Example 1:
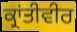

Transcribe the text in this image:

ਕ੍ਰਾਂਤੀਵੀਰ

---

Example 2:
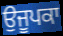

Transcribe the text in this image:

ਉਜੂਪਕਾ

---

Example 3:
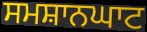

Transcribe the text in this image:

ਸਮਸ਼ਾਨਘਾਟ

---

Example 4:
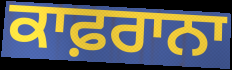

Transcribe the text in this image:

ਕਾਫ਼ਰਾਨਾ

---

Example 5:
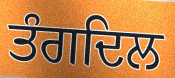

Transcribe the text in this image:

ਤੰਗਦਿਲ